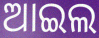
ଆଇଲ